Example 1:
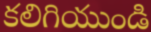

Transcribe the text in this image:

కలిగియుండి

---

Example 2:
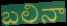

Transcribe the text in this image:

బలినా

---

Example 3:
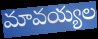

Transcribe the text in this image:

మావయ్యల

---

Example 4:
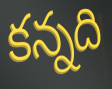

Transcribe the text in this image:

కన్నది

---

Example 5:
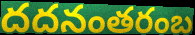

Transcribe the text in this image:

దదనంతరంబ